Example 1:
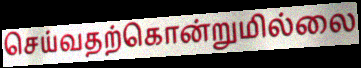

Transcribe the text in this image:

செய்வதற்கொன்றுமில்லை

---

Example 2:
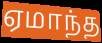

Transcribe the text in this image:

ஏமாந்த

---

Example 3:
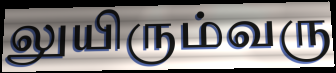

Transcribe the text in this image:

லுயிரும்வரு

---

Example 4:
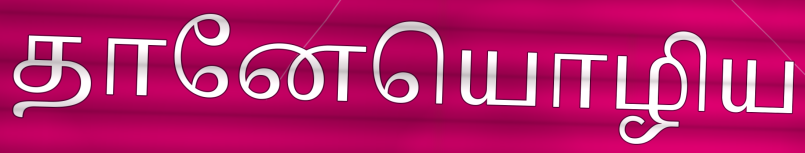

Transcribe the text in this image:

தானேயொழிய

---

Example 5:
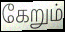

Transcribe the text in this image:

கேறும்